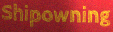
Shipowning